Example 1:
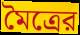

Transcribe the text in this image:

মৈত্রের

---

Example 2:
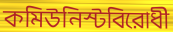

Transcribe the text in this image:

কমিউনিস্টবিরোধী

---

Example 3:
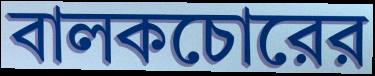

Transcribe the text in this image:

বালকচোরের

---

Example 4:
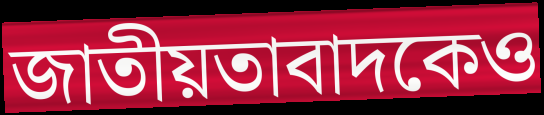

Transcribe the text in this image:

জাতীয়তাবাদকেও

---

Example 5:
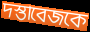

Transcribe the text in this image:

দস্তাবেজকে